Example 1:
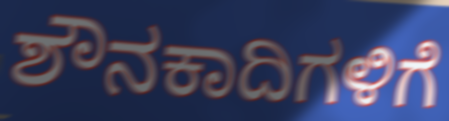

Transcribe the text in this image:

ಶೌನಕಾದಿಗಳಿಗೆ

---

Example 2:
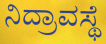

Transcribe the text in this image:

ನಿದ್ರಾವಸ್ಥೆ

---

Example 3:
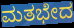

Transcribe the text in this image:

ಮತಭೇದ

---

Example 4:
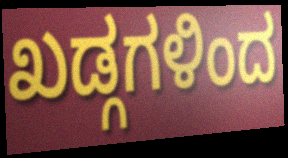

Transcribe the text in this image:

ಖಡ್ಗಗಳಿಂದ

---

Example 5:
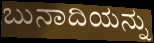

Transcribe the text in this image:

ಬುನಾದಿಯನ್ನು